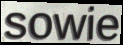
sowie